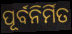
ପୂର୍ବନିର୍ମିତ